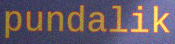
pundalik